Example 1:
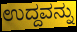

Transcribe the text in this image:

ಉದ್ದವನ್ನು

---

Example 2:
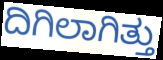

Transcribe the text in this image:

ದಿಗಿಲಾಗಿತ್ತು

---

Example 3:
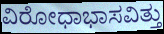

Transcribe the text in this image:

ವಿರೋಧಾಭಾಸವಿತ್ತು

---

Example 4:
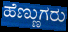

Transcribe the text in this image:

ಹೆಣ್ಣುಗರು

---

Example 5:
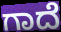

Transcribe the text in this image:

ಗಾದೆ